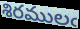
శిరములఁ